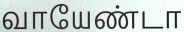
வாயேண்டா